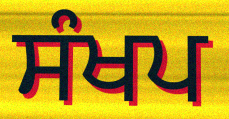
ਸੰਖਪ